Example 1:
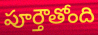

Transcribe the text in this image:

పూర్తౌతోంది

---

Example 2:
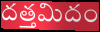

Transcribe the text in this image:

దత్తమిదం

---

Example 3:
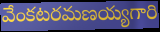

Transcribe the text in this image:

వేంకటరమణయ్యగారి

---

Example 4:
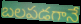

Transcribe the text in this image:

బలపడగానే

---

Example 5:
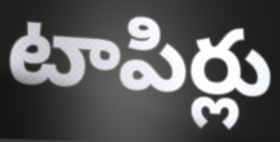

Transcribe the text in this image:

టాపిర్లు